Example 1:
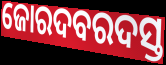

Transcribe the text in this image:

ଜୋରଦବରଦସ୍ତ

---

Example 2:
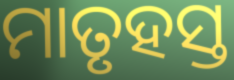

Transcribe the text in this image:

ମାତୃହସ୍ତ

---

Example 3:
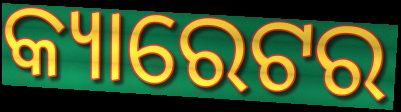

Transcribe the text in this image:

କ୍ୟାରେଟର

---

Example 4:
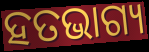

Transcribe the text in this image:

ହତଭାଗ୍ୟ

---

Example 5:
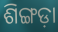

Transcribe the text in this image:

ଶିଙ୍ଗଡ଼ା